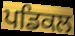
ਪਡਿਕਲ